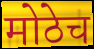
मोठेच